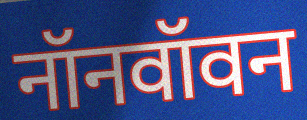
नॉनवॉवन